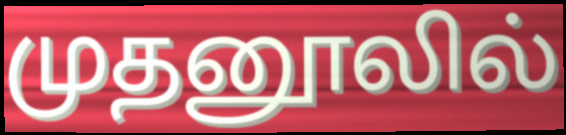
முதனூலில்